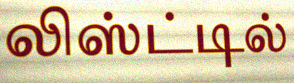
லிஸ்ட்டில்